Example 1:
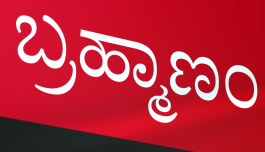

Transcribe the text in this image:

ಬ್ರಹ್ಮಾಣಂ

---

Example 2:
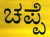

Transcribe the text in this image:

ಚಪ್ಪೆ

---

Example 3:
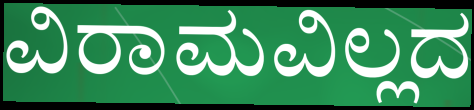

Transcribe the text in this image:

ವಿರಾಮವಿಲ್ಲದ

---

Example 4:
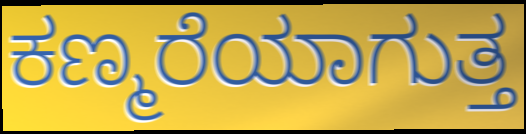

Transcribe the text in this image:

ಕಣ್ಮರೆಯಾಗುತ್ತ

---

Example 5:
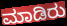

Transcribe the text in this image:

ಮಾಡಿರು